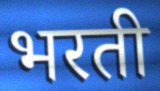
भरती